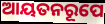
ଆୟତନରୂପେ